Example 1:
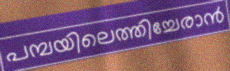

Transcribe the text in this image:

പമ്പയിലെത്തിച്ചേരാൻ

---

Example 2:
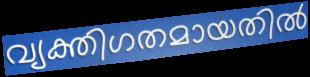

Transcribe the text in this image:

വ്യക്തിഗതമായതിൽ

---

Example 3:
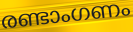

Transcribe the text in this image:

രണ്ടാംഗണം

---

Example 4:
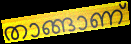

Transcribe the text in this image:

താങ്ങാണ്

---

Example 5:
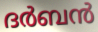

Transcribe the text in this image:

ദർബൻ